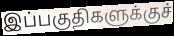
இப்பகுதிகளுக்குச்